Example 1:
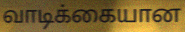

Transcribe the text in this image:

வாடிக்கையான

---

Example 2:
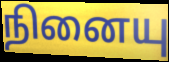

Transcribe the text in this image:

நினையு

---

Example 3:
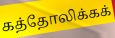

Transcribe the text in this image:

கத்தோலிக்கக்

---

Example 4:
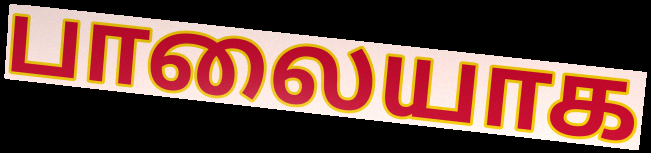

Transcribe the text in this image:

பாலையாக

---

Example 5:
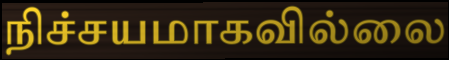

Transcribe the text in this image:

நிச்சயமாகவில்லை